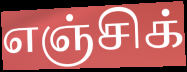
எஞ்சிக்